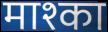
माश्का